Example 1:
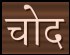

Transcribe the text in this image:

चोद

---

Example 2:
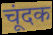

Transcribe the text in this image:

चूंदक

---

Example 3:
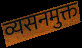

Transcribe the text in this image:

व्यसनमुक्त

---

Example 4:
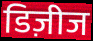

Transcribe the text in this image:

डिज़ीज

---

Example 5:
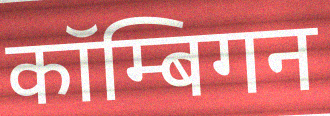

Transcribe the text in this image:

कॉम्बिगन